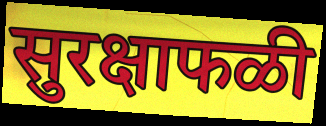
सुरक्षाफळी